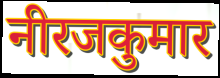
नीरजकुमार